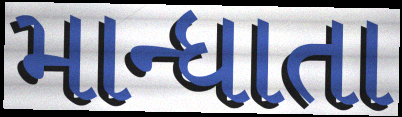
માન્ધાતા